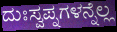
ದುಃಸ್ವಪ್ನಗಳನ್ನೆಲ್ಲ